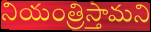
నియంత్రిస్తామని